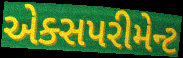
એક્સપરીમેન્ટ